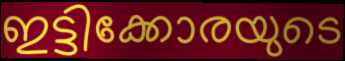
ഇട്ടിക്കോരയുടെ